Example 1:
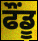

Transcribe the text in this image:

ਫੌਂਡੂ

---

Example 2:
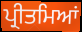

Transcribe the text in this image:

ਪ੍ਰੀਤਮਿਆਂ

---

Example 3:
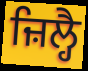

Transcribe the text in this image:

ਜ਼ਿਲ੍ਹੈ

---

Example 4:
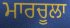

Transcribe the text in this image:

ਮਾਰਚੂਲਾ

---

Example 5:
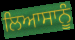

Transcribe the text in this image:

ਲਿਆਸਾਨੂੰ